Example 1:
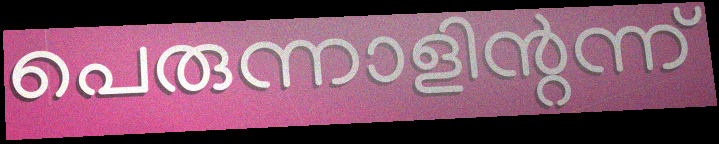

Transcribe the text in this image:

പെരുന്നാളിന്റന്ന്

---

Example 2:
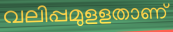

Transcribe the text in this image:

വലിപ്പമുളളതാണ്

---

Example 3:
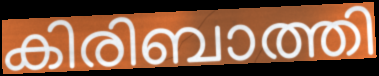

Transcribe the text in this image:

കിരിബാത്തി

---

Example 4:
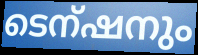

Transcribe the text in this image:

ടെന്ഷനും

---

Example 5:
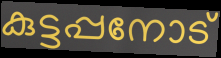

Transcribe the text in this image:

കുട്ടപ്പനോട്